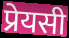
प्रेयसी